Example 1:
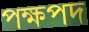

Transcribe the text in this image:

পক্ষপদ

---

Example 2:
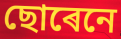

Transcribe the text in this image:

ছোৰেনে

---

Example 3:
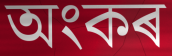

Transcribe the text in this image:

অংকৰ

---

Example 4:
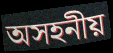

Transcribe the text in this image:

অসহনীয়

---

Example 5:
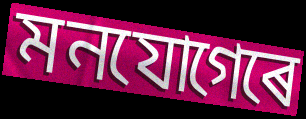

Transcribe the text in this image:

মনযোগেৰে